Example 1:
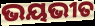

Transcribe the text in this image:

ଭୟଭୀତ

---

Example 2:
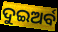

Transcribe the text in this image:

ଦୁଇଅର୍ବ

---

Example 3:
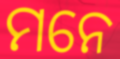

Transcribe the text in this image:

ମନେ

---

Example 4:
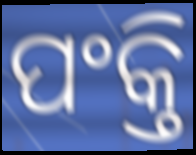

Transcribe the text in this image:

ପଂକ୍ତି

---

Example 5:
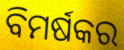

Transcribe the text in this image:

ବିମର୍ଷକର